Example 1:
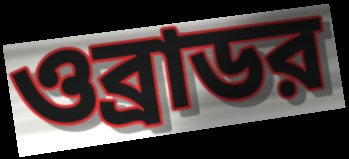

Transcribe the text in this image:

ওব্রাডর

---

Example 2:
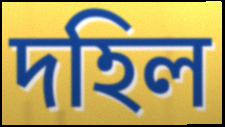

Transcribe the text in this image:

দহিল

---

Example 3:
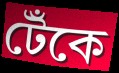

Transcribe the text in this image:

টেঁকে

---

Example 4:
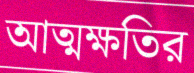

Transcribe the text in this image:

আত্মক্ষতির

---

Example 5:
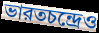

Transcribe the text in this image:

ভারতচন্দ্রেও